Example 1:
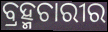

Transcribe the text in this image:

ବ୍ରହ୍ମଚାରୀର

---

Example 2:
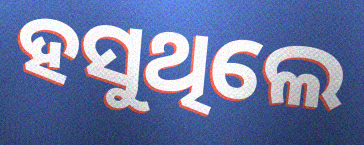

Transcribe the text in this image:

ହସୁଥିଲେ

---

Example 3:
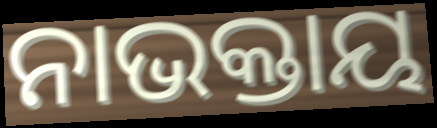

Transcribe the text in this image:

ନାଭକ୍ତାୟ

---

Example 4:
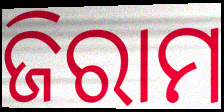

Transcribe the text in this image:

ଜିରାମ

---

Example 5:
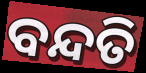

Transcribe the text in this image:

ବନ୍ଦତି